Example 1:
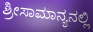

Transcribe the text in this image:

ಶ್ರೀಸಾಮಾನ್ಯನಲ್ಲಿ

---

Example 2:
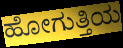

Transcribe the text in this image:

ಹೋಗುತ್ತಿಯ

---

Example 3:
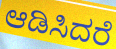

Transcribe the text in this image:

ಆಡಿಸಿದರೆ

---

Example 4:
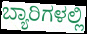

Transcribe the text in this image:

ಬ್ಯಾರಿಗಳಲ್ಲಿ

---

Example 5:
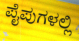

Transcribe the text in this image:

ಪೈಪುಗಳಲ್ಲಿ